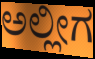
ಅಲ್ಲೀಗ